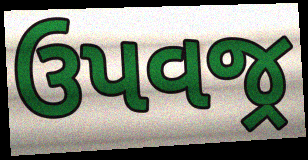
ઉપવજ્ર